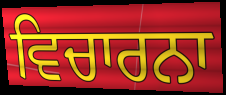
ਵਿਚਾਰਨਾ